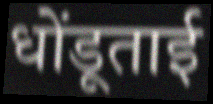
धोंडूताई